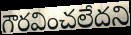
గౌరవించలేదని